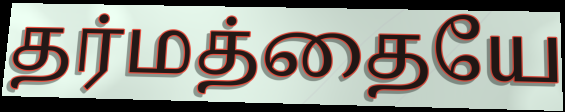
தர்மத்தையே